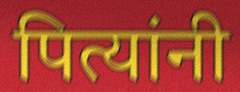
पित्यांनी